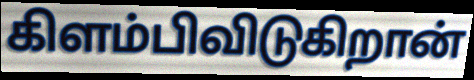
கிளம்பிவிடுகிறான்